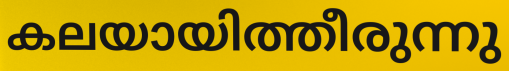
കലയായിത്തീരുന്നു